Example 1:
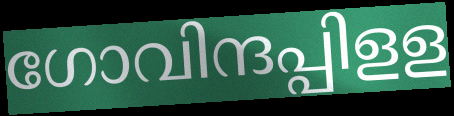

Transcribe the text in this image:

ഗോവിന്ദപ്പിളള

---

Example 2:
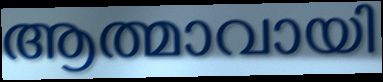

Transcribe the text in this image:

ആത്മാവായി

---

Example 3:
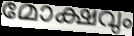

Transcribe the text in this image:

മോക്ഷവും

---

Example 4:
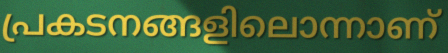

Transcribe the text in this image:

പ്രകടനങ്ങളിലൊന്നാണ്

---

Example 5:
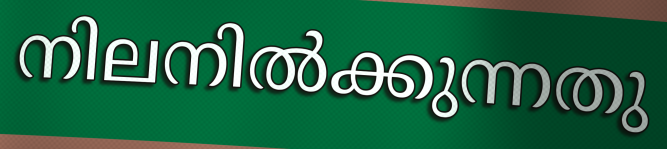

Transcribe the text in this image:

നിലനിൽക്കുന്നതു